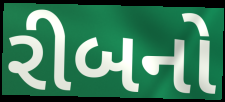
રીબનો